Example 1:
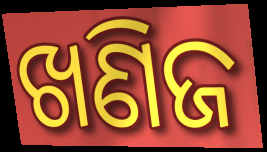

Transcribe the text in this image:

ଖଣିଜ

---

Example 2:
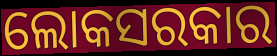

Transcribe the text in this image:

ଲୋକସରକାର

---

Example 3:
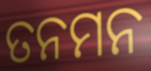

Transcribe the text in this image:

ତନମନ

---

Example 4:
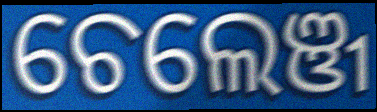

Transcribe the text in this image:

ଚେଲେଞ୍ଜ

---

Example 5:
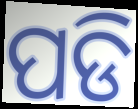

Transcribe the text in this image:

ପଡି